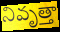
నివృత్తా